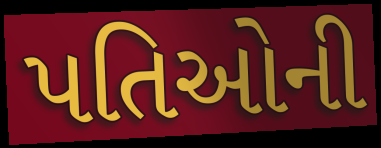
પતિઓની